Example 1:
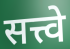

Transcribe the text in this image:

सत्त्वे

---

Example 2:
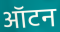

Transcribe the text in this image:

ऑटन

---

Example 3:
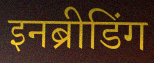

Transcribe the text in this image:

इनब्रीडिंग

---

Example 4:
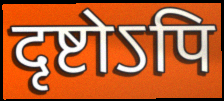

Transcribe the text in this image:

दृष्टोऽपि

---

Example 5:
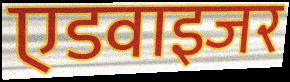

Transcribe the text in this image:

एडवाइजर